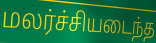
மலர்ச்சியடைந்த